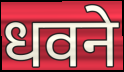
धवने